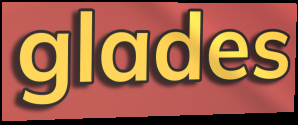
glades